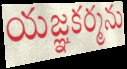
యజ్ఞకర్మను